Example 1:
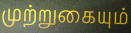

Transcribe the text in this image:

முற்றுகையும்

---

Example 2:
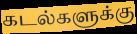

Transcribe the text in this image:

கடல்களுக்கு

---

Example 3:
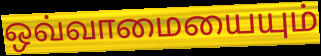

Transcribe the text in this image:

ஒவ்வாமையையும்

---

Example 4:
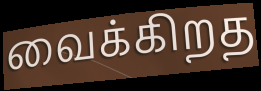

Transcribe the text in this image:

வைக்கிறத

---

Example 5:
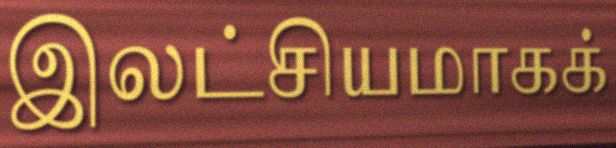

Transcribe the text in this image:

இலட்சியமாகக்